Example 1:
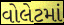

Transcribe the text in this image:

વોલેટમાં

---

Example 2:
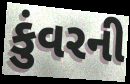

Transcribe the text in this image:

કુંવરની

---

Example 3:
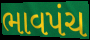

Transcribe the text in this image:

ભાવપંચ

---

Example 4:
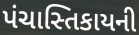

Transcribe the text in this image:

પંચાસ્તિકાયની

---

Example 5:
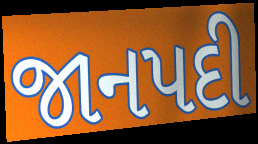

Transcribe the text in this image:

જાનપદી